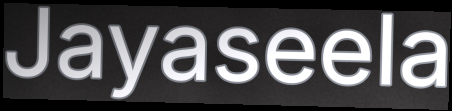
Jayaseela